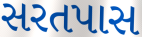
સરતપાસ